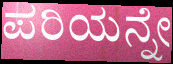
ಪರಿಯನ್ನೇ